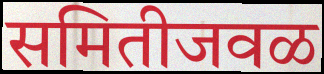
समितीजवळ